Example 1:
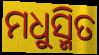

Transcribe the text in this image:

ମଧୁସ୍ମିତ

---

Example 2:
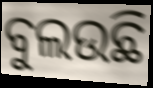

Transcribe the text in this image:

ବୁଲଉଛି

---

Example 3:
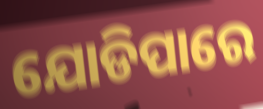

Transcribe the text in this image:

ଯୋଡିପାରେ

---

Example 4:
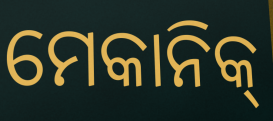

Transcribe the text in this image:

ମେକାନିକ୍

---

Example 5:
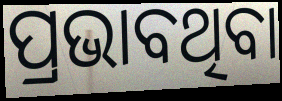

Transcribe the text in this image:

ପ୍ରଭାବଥିବା